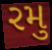
રમુ